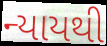
ન્યાયથી